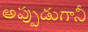
అప్పుడుగానీ